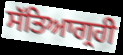
ਸੱਤਿਆਗ੍ਰਹੀ